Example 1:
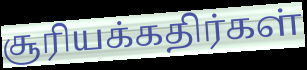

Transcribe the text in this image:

சூரியக்கதிர்கள்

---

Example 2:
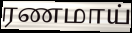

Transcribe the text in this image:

ரணமாய்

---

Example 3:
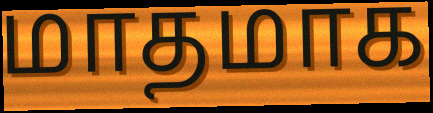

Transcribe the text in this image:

மாதமாக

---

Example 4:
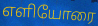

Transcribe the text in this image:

எளியோரை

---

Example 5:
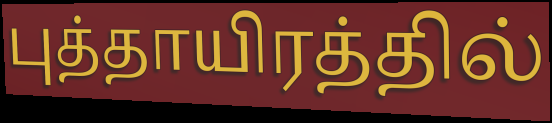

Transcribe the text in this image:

புத்தாயிரத்தில்